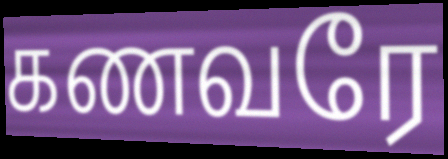
கணவரே